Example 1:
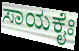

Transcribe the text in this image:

ಸಾಯಕೈಃ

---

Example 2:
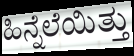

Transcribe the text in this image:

ಹಿನ್ನೆಲೆಯಿತ್ತು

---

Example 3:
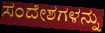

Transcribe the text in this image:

ಸಂದೇಶಗಳನ್ನು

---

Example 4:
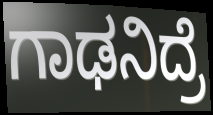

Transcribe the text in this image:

ಗಾಢನಿದ್ರೆ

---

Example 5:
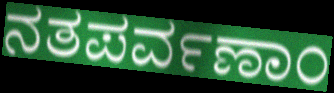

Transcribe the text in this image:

ನತಪರ್ವಣಾಂ